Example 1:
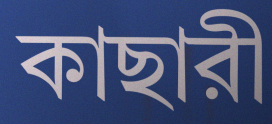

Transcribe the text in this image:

কাছারী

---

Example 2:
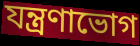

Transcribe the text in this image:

যন্ত্রণাভোগ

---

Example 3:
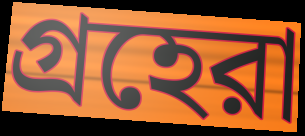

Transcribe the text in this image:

গ্রহেরা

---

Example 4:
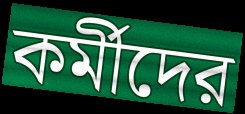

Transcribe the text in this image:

কর্মীদের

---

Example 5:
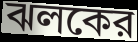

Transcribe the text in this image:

ঝলকের